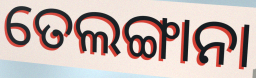
ତେଲଙ୍ଗାନା